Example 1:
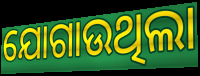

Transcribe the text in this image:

ଯୋଗାଉଥିଲା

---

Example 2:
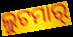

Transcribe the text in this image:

ଲୁଟମାର୍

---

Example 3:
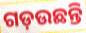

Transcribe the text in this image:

ଗଡ଼ଉଛନ୍ତି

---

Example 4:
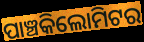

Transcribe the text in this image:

ପାଞ୍ଚକିଲୋମିଟର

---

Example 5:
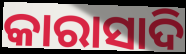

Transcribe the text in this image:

କାରାସାଦି